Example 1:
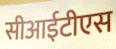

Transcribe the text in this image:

सीआईटीएस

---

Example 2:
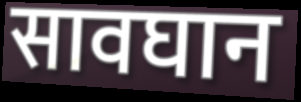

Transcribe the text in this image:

सावघान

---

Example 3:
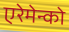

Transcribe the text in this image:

एरेमेन्को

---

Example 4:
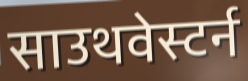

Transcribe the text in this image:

साउथवेस्टर्न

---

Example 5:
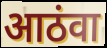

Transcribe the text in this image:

आठंवा